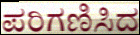
ಪರಿಗಣಿಸಿದ